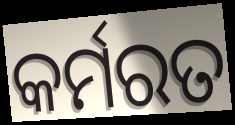
କର୍ମରତ